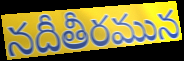
నదీతీరమున